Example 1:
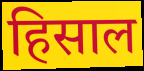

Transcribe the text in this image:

हिसाल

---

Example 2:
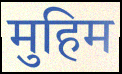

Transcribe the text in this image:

मुहिम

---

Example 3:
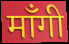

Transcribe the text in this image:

माँगी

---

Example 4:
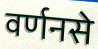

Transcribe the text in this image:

वर्णनसे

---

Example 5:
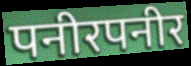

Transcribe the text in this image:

पनीरपनीर